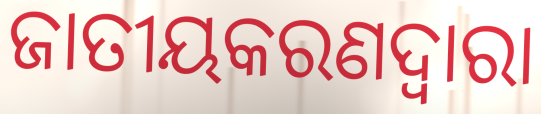
ଜାତୀୟକରଣଦ୍ୱାରା